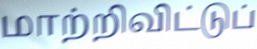
மாற்றிவிட்டுப்